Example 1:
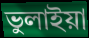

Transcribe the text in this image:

ভুলাইয়া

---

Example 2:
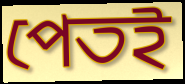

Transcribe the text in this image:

পেতই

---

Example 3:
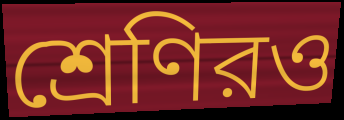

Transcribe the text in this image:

শ্রেণিরও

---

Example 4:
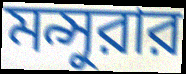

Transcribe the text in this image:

মন্সুরার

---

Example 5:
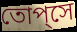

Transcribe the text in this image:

তোপ্‌সে